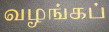
வழங்கப்